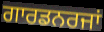
ਗਾਰਡਨਰਜਾਂ